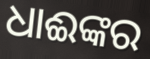
ଧାଈଙ୍କର